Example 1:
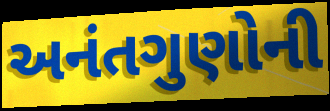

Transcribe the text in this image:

અનંતગુણોની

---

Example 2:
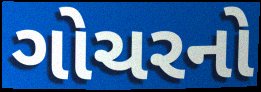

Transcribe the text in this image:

ગોચરનો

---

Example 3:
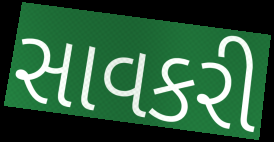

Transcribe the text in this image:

સાવકરી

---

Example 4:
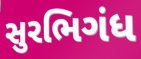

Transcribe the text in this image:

સુરભિગંધ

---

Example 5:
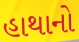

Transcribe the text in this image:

હાથાનો